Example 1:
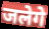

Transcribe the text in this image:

जलेगे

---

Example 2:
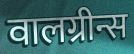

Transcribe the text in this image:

वालग्रीन्स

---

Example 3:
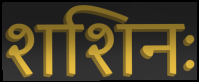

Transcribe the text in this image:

शशिनः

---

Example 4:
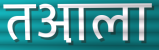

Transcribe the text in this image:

तआ़ला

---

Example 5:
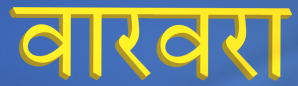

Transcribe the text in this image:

वारवरा